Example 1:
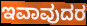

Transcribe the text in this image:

ಇವಾವುದರ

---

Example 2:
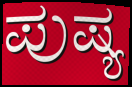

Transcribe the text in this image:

ಪುಷ್ಯ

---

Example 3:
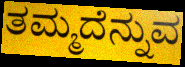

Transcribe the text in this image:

ತಮ್ಮದೆನ್ನುವ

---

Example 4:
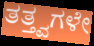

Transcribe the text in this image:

ತತ್ತ್ವಗಳೇ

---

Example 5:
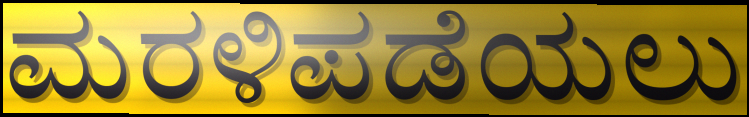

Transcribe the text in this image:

ಮರಳಿಪಡೆಯಲು